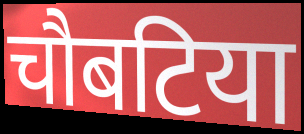
चौबटिया